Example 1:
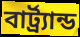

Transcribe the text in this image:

বার্ট্র্যান্ড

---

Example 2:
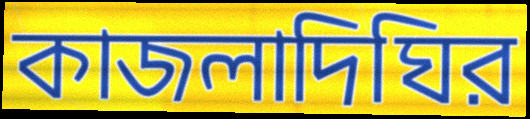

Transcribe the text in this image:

কাজলাদিঘির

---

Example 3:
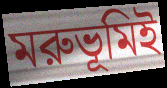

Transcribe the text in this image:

মরুভূমিই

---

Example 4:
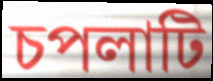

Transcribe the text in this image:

চপলাটি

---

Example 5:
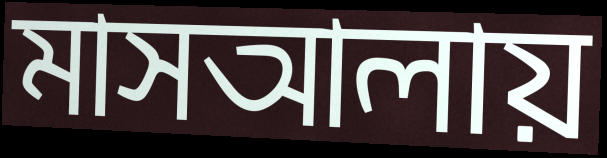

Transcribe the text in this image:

মাসআলায়